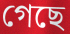
গেছে